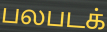
பலபடக்